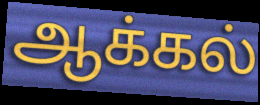
ஆக்கல்